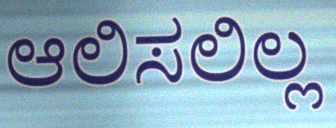
ಆಲಿಸಲಿಲ್ಲ